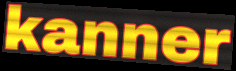
kanner